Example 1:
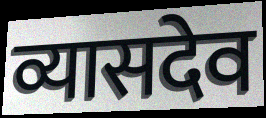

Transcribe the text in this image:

व्यासदेव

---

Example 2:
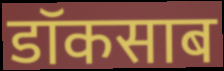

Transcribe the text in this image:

डॉकसाब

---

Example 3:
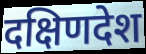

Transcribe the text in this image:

दक्षिणदेश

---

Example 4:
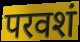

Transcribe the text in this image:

परवशं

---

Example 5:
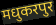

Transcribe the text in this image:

मधुकरपुर